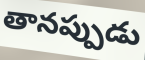
తానప్పుడు